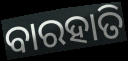
ବାରହାତି